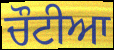
ਚੌਟੀਆ